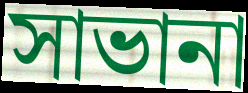
সাভানা